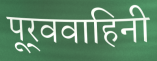
पूर्ववाहिनी